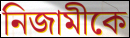
নিজামীকে